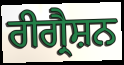
ਰੀਗ੍ਰੈਸ਼ਨ